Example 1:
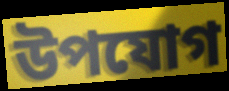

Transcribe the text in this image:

উপযোগ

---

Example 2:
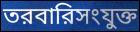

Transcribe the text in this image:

তরবারিসংযুক্ত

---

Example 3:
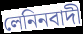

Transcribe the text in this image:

লেনিনবাদী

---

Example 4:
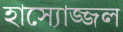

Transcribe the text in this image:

হাস্যোজ্জল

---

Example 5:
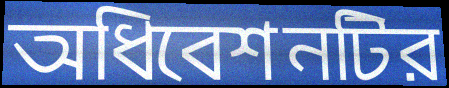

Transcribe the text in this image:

অধিবেশনটির